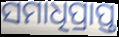
ସମାଧିପ୍ରାପ୍ତ